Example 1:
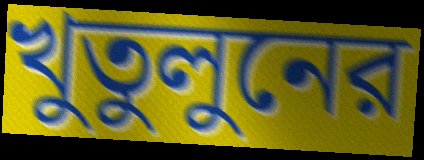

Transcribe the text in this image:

খুতুলুনের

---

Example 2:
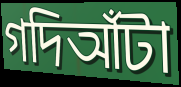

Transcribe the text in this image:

গদিআঁটা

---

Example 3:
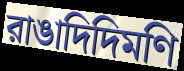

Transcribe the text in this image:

রাঙাদিদিমণি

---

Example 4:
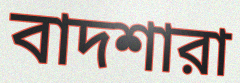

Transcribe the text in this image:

বাদশারা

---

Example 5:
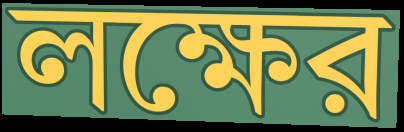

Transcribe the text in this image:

লক্ষের